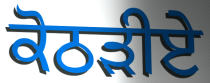
ਕੋਠੜੀਏ